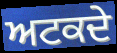
ਅਟਕਦੇ